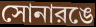
সোনারঙে